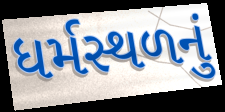
ધર્મસ્થળનું